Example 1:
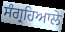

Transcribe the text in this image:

ਸੰਗ੍ਰਹਿਆਲੇ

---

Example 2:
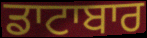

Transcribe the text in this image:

ਡਾਟਾਬਾਰ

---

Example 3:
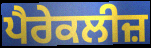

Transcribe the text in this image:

ਪੈਰੇਕਲੀਜ਼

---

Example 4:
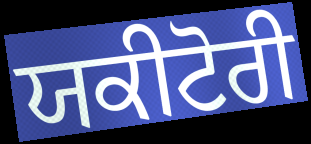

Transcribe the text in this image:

ਯਕੀਟੋਰੀ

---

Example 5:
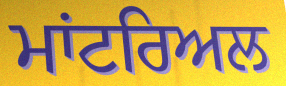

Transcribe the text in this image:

ਮਾਂਟਰਿਅਲ